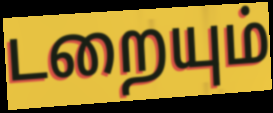
டறையும்